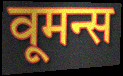
वूमन्स